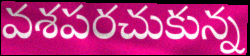
వశపరచుకున్న